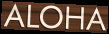
ALOHA